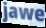
jawe